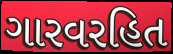
ગારવરહિત